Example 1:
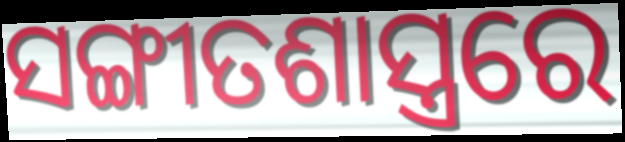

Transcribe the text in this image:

ସଙ୍ଗୀତଶାସ୍ତ୍ରରେ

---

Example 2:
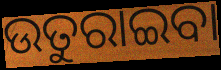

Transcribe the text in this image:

ଉତୁରାଇବା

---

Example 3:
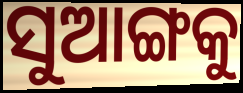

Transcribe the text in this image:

ସୁଆଙ୍ଗକୁ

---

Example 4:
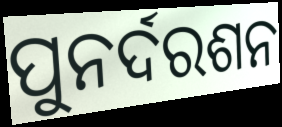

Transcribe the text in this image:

ପୁନର୍ଦରଶନ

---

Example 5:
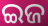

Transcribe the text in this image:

ଇଜ